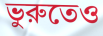
ভুরুতেও